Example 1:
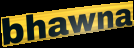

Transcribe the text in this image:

bhawna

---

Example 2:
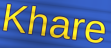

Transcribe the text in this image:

Khare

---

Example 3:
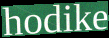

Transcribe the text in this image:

hodike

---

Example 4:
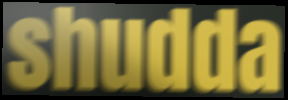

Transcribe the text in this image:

shudda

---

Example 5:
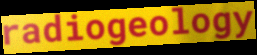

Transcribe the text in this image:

radiogeology